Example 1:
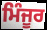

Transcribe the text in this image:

ਮਿੰਜੂਰ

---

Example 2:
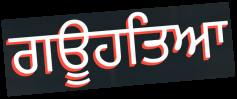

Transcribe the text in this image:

ਗਊਹਤਿਆ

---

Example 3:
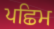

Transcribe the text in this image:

ਪਛਿਮ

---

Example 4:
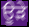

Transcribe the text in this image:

ਊੜੇ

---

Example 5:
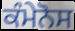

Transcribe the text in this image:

ਕੰਮੇਨੋਸ